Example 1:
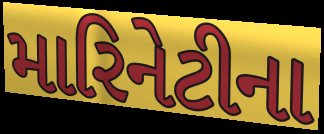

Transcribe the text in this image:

મારિનેટીના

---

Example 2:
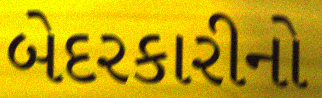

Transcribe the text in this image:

બેદરકારીનો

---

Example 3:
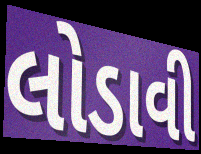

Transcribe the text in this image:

લોડાવી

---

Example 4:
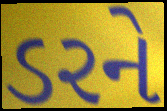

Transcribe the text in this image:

ડરને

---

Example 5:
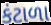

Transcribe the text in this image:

કંટાળા